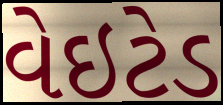
વેઇટેડ